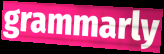
grammarly